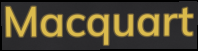
Macquart